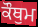
ਕੌਥੁਮ